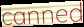
canned